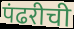
पंढरीची